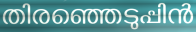
തിരഞ്ഞെടുപ്പിൻ